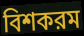
বিশকরম